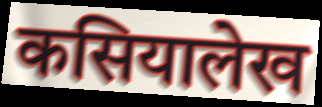
कसियालेख